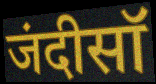
जंदीसॉ